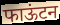
फाऊंटन